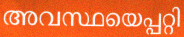
അവസ്ഥയെപ്പറ്റി